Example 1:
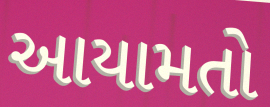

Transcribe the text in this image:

આયામતો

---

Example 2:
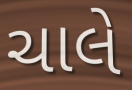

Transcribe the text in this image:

ચાલે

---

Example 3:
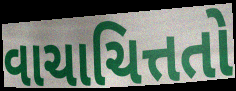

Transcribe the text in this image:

વાચાચિત્તતો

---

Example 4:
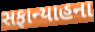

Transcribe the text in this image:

સફાન્યાહના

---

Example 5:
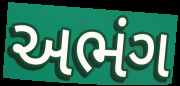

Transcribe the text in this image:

અભંગ